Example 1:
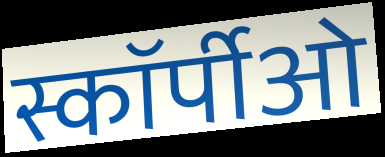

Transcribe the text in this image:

स्कॉर्पीओ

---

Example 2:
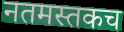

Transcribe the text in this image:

नतमस्तकच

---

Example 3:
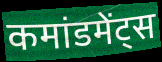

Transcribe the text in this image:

कमांडमेंट्स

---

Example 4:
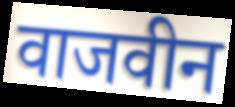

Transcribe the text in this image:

वाजवीन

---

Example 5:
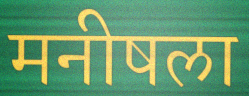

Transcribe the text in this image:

मनीषला